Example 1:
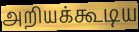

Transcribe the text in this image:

அறியக்கூடிய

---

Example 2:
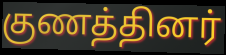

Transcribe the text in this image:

குணத்தினர்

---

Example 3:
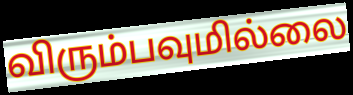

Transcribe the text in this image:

விரும்பவுமில்லை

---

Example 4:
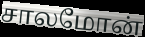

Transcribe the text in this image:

சாலமோன்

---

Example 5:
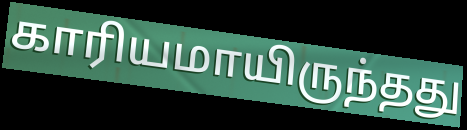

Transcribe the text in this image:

காரியமாயிருந்தது